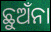
ଛୁଅଁନା